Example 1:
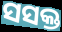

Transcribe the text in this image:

ସସକ୍ତ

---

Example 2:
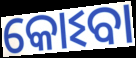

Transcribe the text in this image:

କୋଽବା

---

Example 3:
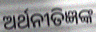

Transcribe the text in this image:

ଅର୍ଥନୀତିଜ୍ଞଙ୍କ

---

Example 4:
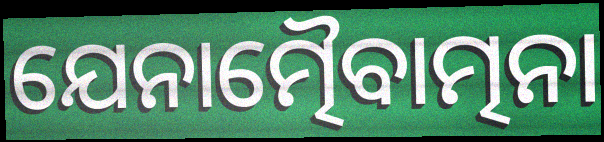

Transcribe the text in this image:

ଯେନାତ୍ମୈବାତ୍ମନା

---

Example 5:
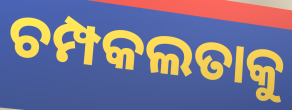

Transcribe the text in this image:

ଚମ୍ପକଲତାକୁ